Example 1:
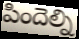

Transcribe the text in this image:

పిందెల్ని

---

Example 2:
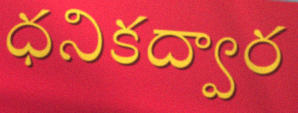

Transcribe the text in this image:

ధనికద్వార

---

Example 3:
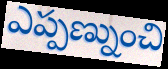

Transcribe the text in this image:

ఎప్పణ్నుంచి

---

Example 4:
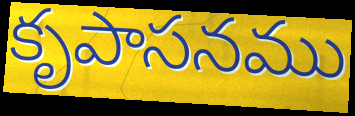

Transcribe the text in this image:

కృపాసనము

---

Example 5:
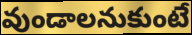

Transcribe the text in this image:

వుండాలనుకుంటే